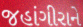
જહાંગીરાને